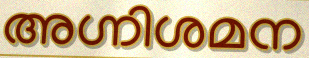
അഗ്നിശമന